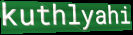
kuthlyahi